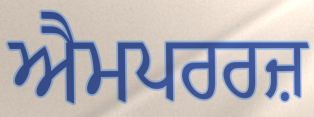
ਐਮਪਰਰਜ਼